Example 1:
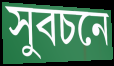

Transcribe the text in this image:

সুবচনে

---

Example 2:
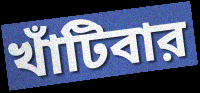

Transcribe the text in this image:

খাঁটিবার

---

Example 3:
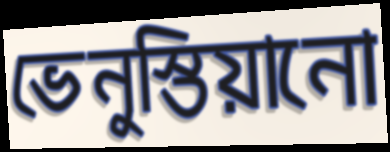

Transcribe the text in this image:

ভেনুস্তিয়ানো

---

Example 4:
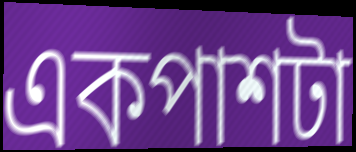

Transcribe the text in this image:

একপাশটা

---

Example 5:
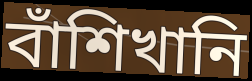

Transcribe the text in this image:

বাঁশিখানি